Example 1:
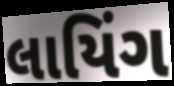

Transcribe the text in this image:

લાયિંગ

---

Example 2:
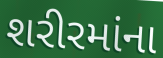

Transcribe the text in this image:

શરીરમાંના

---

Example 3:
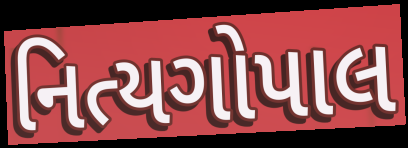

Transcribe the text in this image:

નિત્યગોપાલ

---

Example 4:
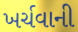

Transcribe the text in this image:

ખર્ચવાની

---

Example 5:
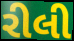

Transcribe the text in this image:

રીલી